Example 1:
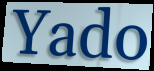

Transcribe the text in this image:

Yado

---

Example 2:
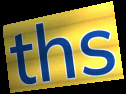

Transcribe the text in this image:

ths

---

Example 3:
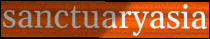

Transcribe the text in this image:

sanctuaryasia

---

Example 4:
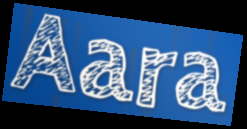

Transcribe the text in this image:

Aara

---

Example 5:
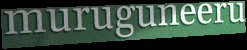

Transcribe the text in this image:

muruguneeru